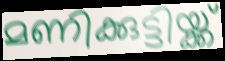
മണിക്കുട്ടിയ്ക്ക്